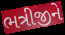
ભત્રીજીને